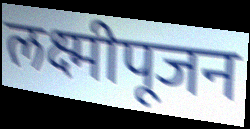
लक्ष्मीपूजन